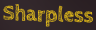
Sharpless